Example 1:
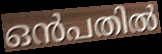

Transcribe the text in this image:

ഒൻപതിൽ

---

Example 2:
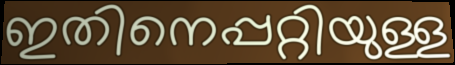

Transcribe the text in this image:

ഇതിനെപ്പറ്റിയുള്ള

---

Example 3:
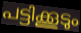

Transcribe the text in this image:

പട്ടിക്കൂടും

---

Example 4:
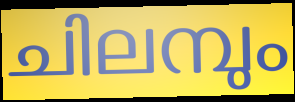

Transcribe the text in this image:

ചിലമ്പും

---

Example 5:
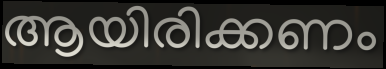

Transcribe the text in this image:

ആയിരിക്കണം